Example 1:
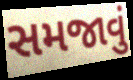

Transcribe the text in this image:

સમજાવું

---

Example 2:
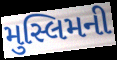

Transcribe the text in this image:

મુસ્લિમની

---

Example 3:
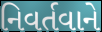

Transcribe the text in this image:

નિવર્તવાને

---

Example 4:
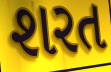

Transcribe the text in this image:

શરત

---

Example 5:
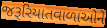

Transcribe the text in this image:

જરૂરિયાતવાળાઓને